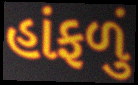
હાંફળું